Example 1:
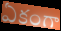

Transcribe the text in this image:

ఏకంగా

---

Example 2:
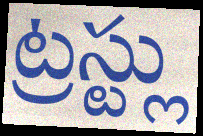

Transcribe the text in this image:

ట్రస్ట్లు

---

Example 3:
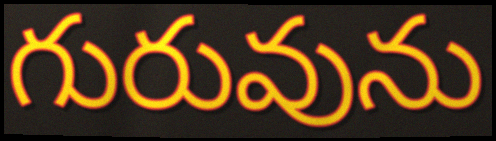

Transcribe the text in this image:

గురువును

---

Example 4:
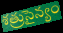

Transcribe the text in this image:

శత్రుసైన్యం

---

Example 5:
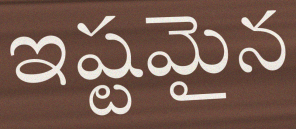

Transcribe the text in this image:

ఇష్టమైన